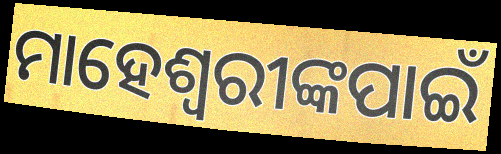
ମାହେଶ୍ୱରୀଙ୍କପାଇଁ